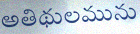
అతిథులమును